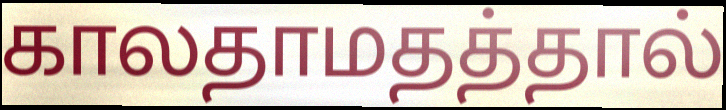
காலதாமதத்தால்